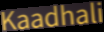
Kaadhali